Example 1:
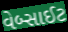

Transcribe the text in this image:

વેબ્સાઈટ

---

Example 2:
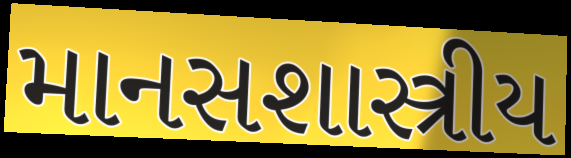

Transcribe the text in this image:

માનસશાસ્ત્રીય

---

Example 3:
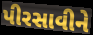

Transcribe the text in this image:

પીરસાવીને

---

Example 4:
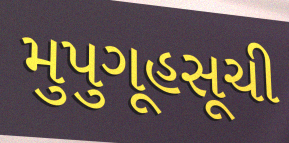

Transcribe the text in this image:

મુપુગૂહસૂચી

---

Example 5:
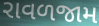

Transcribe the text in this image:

રાવળજામ